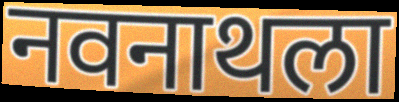
नवनाथला